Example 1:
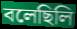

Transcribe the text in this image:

বলেছিলি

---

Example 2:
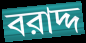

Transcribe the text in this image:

বরাদ্দ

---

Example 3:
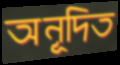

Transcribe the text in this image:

অনূদিত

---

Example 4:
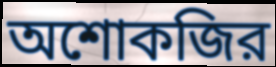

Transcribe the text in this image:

অশোকজির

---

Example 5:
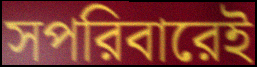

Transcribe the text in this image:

সপরিবারেই